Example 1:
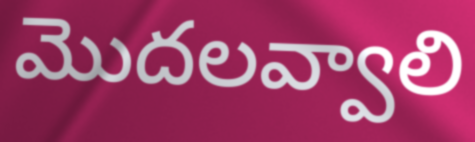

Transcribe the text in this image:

మొదలవ్వాలి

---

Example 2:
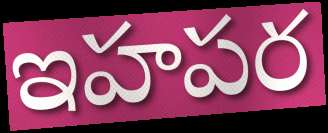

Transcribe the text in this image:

ఇహపర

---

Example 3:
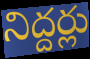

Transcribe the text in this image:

నిద్దర్లు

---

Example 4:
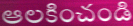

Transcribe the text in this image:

ఆలకించండి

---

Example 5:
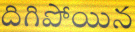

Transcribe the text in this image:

దిగిపోయిన